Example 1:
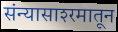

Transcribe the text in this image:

संन्यासाश्रमातून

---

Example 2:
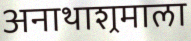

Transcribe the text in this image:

अनाथाश्रमाला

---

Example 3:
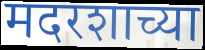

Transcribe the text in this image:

मदरशाच्या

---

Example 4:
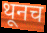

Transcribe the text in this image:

थूनच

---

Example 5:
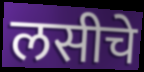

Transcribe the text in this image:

लसीचे